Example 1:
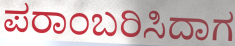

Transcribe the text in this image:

ಪರಾಂಬರಿಸಿದಾಗ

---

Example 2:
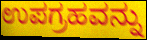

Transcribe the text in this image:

ಉಪಗ್ರಹವನ್ನು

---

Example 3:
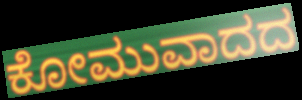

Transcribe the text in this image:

ಕೋಮುವಾದದ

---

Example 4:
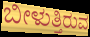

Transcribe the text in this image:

ಬೀಳುತ್ತಿರುವ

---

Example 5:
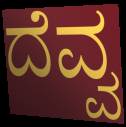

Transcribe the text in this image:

ದೆವ್ವ